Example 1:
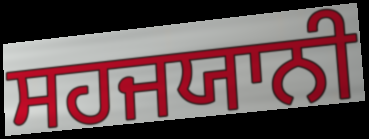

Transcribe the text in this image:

ਸਹਜਯਾਨੀ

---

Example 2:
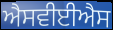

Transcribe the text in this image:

ਐਸਵੀਈਐਸ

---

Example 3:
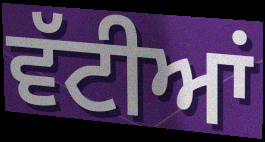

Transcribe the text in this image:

ਵੱਟੀਆਂ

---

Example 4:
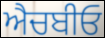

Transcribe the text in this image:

ਐਚਬੀਓ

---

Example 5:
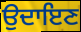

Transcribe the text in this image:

ਉਦਾਇਣ